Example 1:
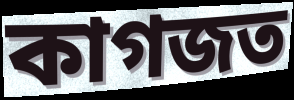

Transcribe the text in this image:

কাগজত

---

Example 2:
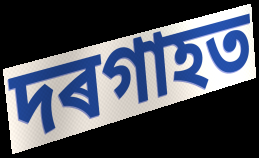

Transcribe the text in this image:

দৰগাহত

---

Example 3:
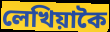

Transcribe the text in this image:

লেখিয়াকৈ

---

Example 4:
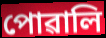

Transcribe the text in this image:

পোৱালি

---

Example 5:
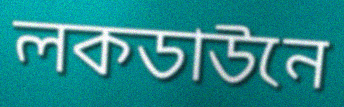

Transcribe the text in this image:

লকডাউনে